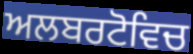
ਅਲਬਰਟੋਵਿਚ